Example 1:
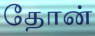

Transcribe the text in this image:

தோன்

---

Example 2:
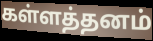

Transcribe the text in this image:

கள்ளத்தனம்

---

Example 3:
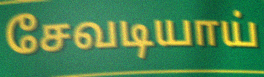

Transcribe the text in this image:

சேவடியாய்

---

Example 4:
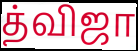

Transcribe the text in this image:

த்விஜா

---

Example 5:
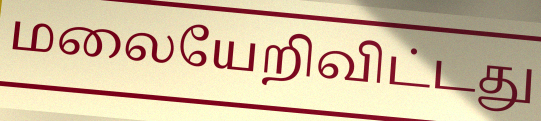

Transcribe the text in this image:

மலையேறிவிட்டது